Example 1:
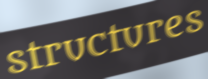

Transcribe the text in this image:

structures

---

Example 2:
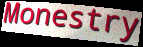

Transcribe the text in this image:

Monestry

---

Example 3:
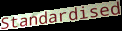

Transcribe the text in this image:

Standardised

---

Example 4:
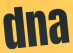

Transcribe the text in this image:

dna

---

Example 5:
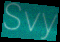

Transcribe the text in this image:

Svy